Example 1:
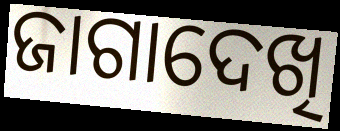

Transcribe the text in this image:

ଜାଗାଦେଖି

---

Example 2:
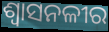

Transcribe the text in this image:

ଶ୍ୱାସନଳୀର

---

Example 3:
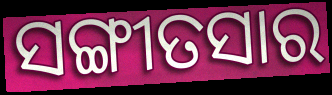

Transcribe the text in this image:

ସଙ୍ଗୀତସାର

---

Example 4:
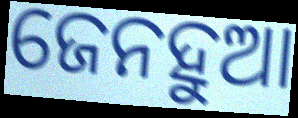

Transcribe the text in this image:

ଜେନହୁଆ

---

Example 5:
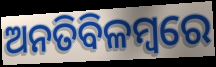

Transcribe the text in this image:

ଅନତିବିଳମ୍ବରେ